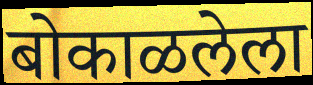
बोकाळलेला